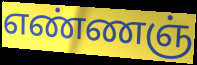
எண்ணஞ்